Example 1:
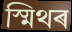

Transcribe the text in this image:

স্মিথৰ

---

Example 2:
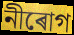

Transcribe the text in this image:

নীৰোগ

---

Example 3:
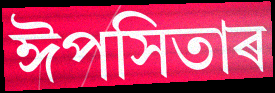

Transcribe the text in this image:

ঈপসিতাৰ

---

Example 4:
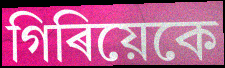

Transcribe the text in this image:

গিৰিয়েকে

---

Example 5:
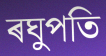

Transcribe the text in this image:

ৰঘুপতি